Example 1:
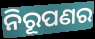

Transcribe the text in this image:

ନିରୂପଣର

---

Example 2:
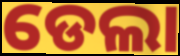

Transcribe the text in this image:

ଡେଲା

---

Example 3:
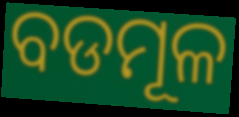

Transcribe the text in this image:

ବଡମୂଳ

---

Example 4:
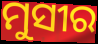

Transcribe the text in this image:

ମୁସୀର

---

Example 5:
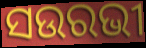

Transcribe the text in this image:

ସଉରଭୀ